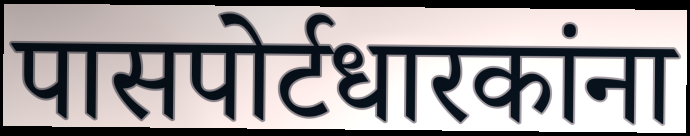
पासपोर्टधारकांना